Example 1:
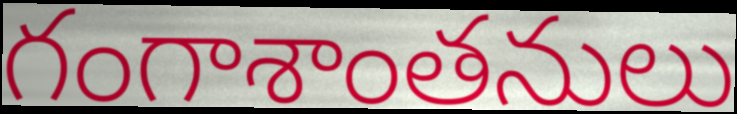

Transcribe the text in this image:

గంగాశాంతనులు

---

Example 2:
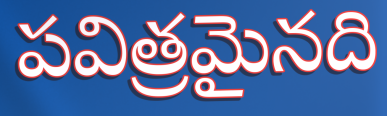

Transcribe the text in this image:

పవిత్రమైనది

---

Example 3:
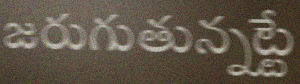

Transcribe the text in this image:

జరుగుతున్నట్టే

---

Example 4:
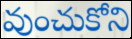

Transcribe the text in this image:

వుంచుకోని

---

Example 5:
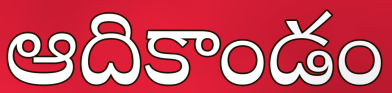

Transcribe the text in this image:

ఆదికాండం